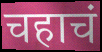
चहाचं